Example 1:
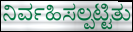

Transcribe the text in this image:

ನಿರ್ವಹಿಸಲ್ಪಟ್ಟಿತು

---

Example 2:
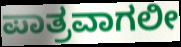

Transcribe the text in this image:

ಪಾತ್ರವಾಗಲೀ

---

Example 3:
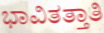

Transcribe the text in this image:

ಭಾವಿತತ್ತಾತಿ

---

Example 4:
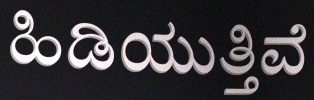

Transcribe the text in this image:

ಹಿಡಿಯುತ್ತಿವೆ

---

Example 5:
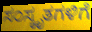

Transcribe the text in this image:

ಸಂಸ್ಕೃತಗಳಿಗೆ